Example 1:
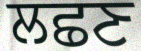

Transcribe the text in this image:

ਲਛਣ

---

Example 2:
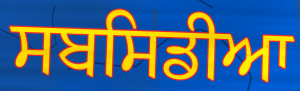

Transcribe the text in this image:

ਸਬਸਿਡੀਆ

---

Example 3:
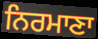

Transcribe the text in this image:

ਨਿਰਮਾਣਾ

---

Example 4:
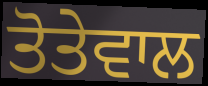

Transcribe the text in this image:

ਤੋਤੇਵਾਲ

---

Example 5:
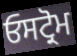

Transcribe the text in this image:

ਓਸਟ੍ਰੋਮ